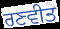
ਰਣਵੀਤ